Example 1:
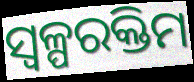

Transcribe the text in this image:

ସ୍ୱଳ୍ପରକ୍ତିମ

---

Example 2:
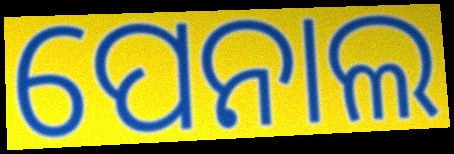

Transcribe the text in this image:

ପେନାଲ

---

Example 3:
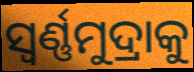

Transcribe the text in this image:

ସ୍ଵର୍ଣ୍ଣମୁଦ୍ରାକୁ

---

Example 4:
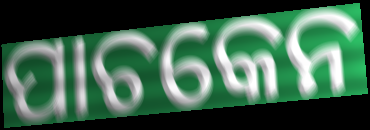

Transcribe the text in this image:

ପାଚକେନ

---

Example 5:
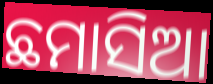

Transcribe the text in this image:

ଛମାସିଆ